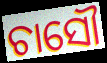
ଚାସୌ